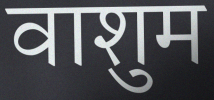
वाशुम